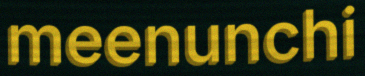
meenunchi